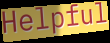
Helpful